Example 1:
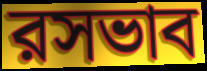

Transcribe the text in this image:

রসভাব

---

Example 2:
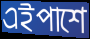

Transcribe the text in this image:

এইপাশে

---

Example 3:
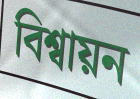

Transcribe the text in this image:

বিশ্বায়ন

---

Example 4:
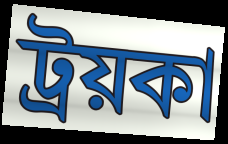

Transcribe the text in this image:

ট্রয়কা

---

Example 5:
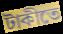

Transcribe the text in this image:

টাকীতে